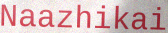
Naazhikai